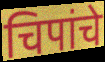
चिपांचे